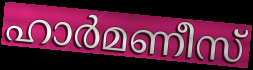
ഹാർമണീസ്